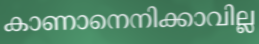
കാണാനെനിക്കാവില്ല